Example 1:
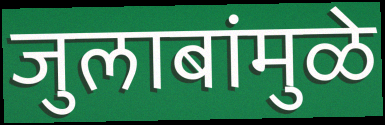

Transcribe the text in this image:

जुलाबांमुळे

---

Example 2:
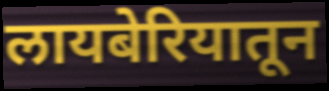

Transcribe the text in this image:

लायबेरियातून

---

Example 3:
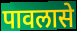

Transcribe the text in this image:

पावलासे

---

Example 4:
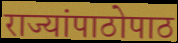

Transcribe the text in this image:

राज्यांपाठोपाठ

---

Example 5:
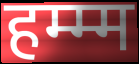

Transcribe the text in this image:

हम्म्म